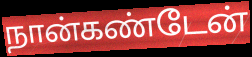
நான்கண்டேன்